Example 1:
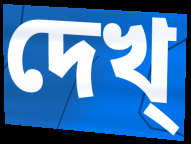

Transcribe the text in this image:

দেখ্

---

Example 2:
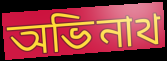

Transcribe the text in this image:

অভিনাথ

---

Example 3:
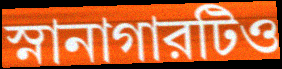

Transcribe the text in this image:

স্নানাগারটিও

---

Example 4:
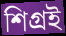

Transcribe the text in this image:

শিগ্রই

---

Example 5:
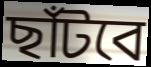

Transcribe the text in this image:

ছাঁটবে